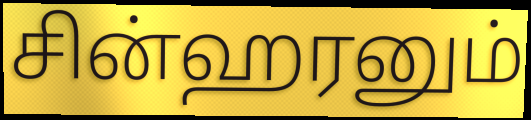
சின்ஹரனும்